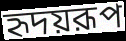
হৃদয়রূপ